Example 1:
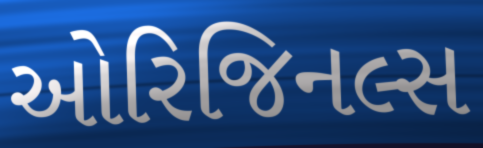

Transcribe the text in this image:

ઓરિજિનલ્સ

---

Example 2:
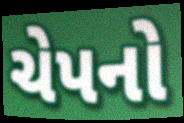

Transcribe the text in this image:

ચેપનો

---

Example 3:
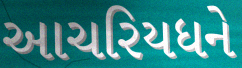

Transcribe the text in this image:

આચરિયધને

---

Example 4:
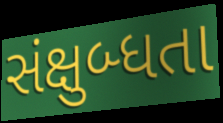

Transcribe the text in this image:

સંક્ષુબ્ધતા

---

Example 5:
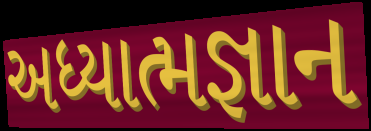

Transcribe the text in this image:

અધ્યાત્મજ્ઞાન